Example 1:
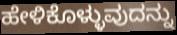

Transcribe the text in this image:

ಹೇಳಿಕೊಳ್ಳುವುದನ್ನು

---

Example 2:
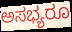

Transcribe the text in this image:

ಅಸಭ್ಯರೂ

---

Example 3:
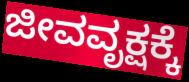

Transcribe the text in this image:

ಜೀವವೃಕ್ಷಕ್ಕೆ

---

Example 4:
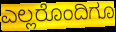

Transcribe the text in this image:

ಎಲ್ಲರೊಂದಿಗೂ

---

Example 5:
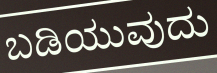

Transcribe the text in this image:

ಬಡಿಯುವುದು